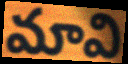
మావి